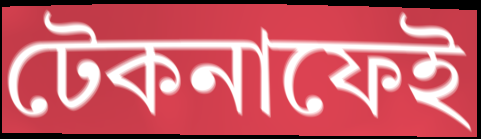
টেকনাফেই